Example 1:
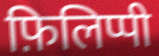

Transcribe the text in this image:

फ़िलिप्पी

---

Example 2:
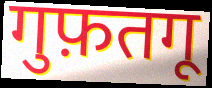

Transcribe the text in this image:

गुफ़तगू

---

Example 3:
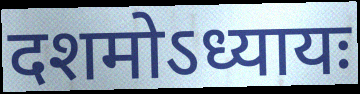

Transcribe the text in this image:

दशमोऽध्यायः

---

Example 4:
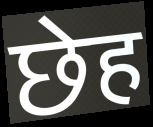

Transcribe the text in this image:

छेह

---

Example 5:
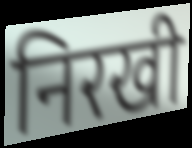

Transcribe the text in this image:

निरखी